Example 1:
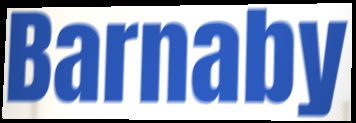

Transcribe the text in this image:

Barnaby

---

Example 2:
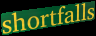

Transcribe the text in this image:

shortfalls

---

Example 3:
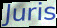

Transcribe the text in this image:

Juris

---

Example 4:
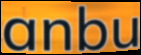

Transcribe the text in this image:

anbu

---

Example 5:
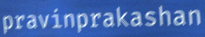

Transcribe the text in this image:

pravinprakashan